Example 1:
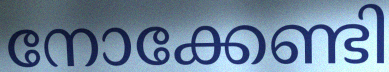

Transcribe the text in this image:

നോക്കേണ്ടി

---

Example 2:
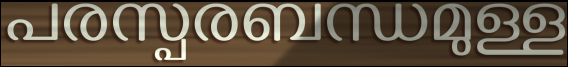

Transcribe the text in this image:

പരസ്പരബന്ധമുള്ള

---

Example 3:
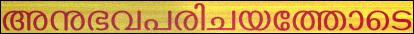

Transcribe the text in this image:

അനുഭവപരിചയത്തോടെ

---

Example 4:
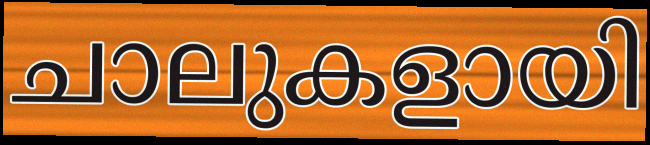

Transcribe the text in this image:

ചാലുകളായി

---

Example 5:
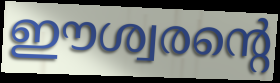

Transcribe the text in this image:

ഈശ്വരന്റെ